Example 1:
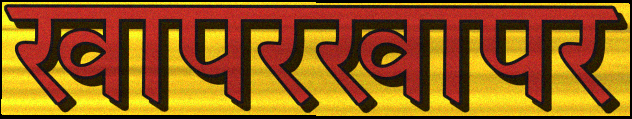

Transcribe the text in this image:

खापरखापर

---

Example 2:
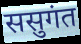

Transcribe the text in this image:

ससुगंत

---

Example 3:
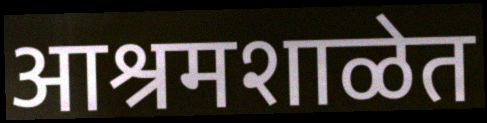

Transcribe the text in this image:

आश्रमशाळेत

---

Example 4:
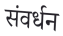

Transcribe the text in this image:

संवर्धन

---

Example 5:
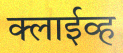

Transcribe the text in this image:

क्लाईव्ह